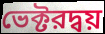
ভেক্টরদ্বয়